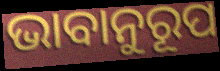
ଭାବାନୁରୂପ